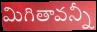
మిగితావన్నీ